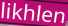
likhlen